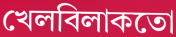
খেলবিলাকতো